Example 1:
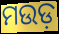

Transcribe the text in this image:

ମଉଡ଼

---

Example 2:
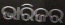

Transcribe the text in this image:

ଭାରିଜର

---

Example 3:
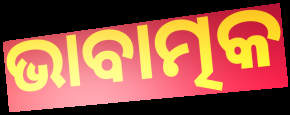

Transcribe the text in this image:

ଭାବାତ୍ମକ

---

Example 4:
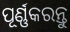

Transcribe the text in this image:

ପୂର୍ଣ୍ଣକରନ୍ତୁ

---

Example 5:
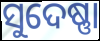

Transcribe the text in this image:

ସୁଦେଷ୍ଣା